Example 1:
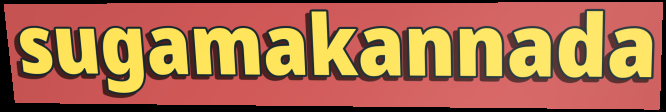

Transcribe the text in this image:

sugamakannada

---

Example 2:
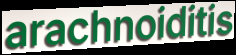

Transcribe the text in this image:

arachnoiditis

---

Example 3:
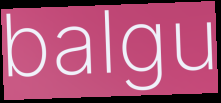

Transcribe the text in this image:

balgu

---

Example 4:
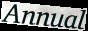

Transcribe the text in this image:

Annual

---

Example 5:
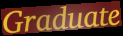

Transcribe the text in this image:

Graduate